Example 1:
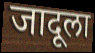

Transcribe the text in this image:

जादूला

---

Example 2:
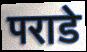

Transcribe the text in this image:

पराडे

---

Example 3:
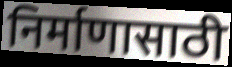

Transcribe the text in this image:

निर्माणासाठी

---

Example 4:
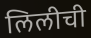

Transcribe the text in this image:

लिलीची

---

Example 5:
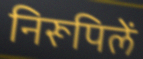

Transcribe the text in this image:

निरूपिलें